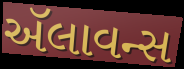
ઍલાવન્સ